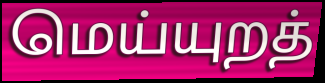
மெய்யுறத்